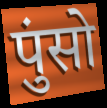
पुंसो